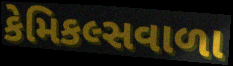
કેમિકલ્સવાળા